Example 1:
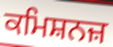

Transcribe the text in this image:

ਕਮਿਸ਼ਨਜ਼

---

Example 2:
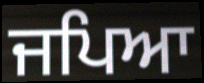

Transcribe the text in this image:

ਜਪਿਆ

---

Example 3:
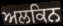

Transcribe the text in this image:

ਅਲਕਿਨ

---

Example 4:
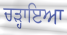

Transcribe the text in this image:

ਚੜ੍ਹਾਇਆ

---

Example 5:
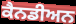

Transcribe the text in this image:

ਕੈਨਡੀਅਨ